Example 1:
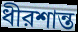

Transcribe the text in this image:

ধীরশান্ত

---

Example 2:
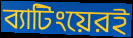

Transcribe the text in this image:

ব্যাটিংয়েরই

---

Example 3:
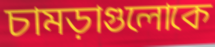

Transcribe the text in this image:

চামড়াগুলোকে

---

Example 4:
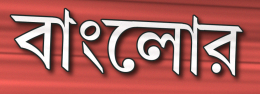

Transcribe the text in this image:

বাংলোর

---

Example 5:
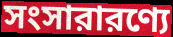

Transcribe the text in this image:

সংসারারণ্যে